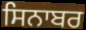
ਸਿਨਾਬਰ